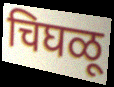
चिघळू